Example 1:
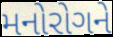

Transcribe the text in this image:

મનોરોગને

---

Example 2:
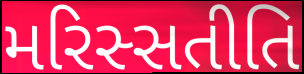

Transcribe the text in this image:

મરિસ્સતીતિ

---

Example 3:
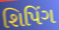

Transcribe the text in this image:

શિપિંગ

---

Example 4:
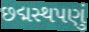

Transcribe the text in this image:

છદ્મસ્થપણું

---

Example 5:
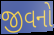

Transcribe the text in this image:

જીવનો